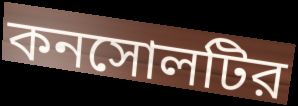
কনসোলটির